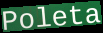
Poleta